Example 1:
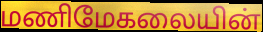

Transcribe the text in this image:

மணிமேகலையின்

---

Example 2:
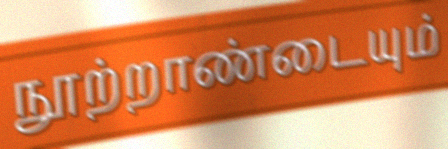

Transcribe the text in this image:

நூற்றாண்டையும்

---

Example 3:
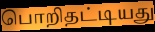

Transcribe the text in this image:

பொறிதட்டியது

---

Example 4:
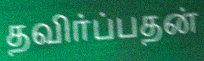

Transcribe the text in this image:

தவிர்ப்பதன்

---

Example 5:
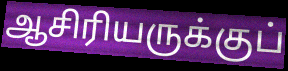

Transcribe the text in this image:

ஆசிரியருக்குப்